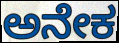
ಅನೇಕ